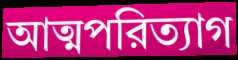
আত্মপরিত্যাগ